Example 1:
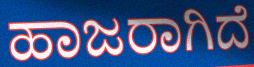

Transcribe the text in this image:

ಹಾಜರಾಗಿದೆ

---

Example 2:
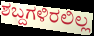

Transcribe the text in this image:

ಶಬ್ದಗಳಿರಲಿಲ್ಲ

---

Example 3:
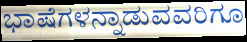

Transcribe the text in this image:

ಭಾಷೆಗಳನ್ನಾಡುವವರಿಗೂ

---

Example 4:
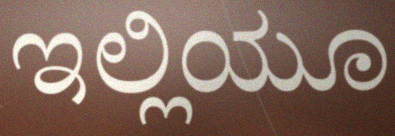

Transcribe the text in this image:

ಇಲ್ಲಿಯೂ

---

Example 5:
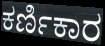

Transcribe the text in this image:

ಕರ್ಣಿಕಾರ